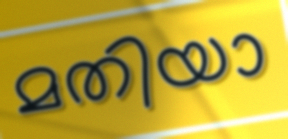
മതിയാ